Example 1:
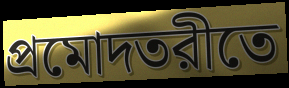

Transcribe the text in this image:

প্রমোদতরীতে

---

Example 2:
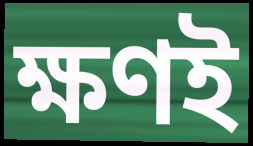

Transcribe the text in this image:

ক্ষণই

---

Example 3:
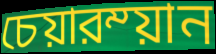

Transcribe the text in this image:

চেয়ারম্য়ান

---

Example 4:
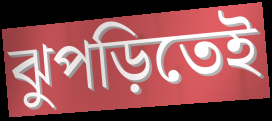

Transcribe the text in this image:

ঝুপড়িতেই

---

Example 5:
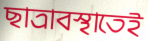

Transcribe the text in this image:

ছাত্রাবস্থাতেই